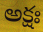
అక్షః